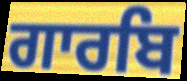
ਗਾਰਬਿ